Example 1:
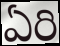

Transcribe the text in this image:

ఏరి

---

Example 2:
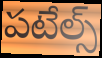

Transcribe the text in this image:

పటేల్స్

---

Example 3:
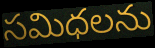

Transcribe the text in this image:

సమిధలను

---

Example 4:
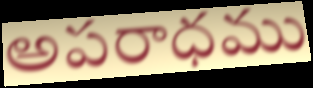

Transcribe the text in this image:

అపరాధము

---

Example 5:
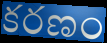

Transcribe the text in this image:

కరణం